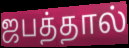
ஜபத்தால்